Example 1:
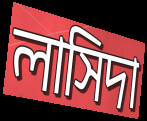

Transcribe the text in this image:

লাসিদা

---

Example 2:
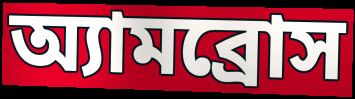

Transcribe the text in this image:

অ্যামব্রোস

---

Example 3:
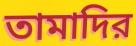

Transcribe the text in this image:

তামাদির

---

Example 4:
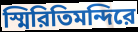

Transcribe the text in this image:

স্মিরিতিমন্দিরে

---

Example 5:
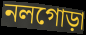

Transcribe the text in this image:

নলগোড়া